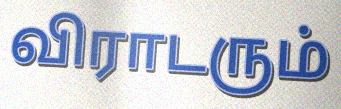
விராடரும்